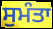
ਸੁਮੰਤਾ